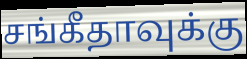
சங்கீதாவுக்கு